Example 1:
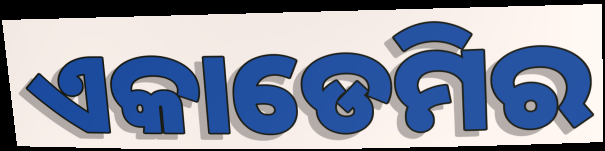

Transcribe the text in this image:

ଏକାଡେମିର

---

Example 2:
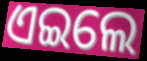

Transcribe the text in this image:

ଏଇଲେ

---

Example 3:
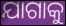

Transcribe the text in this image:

ଯାଗାକୁ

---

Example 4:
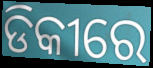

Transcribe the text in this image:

ଡିକୀରେ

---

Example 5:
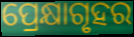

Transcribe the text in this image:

ପ୍ରେକ୍ଷାଗୃହର